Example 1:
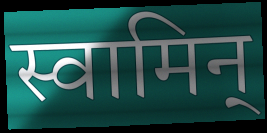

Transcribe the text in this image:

स्वामिन्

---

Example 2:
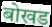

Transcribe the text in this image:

बोखड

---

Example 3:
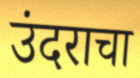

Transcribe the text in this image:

उंदराचा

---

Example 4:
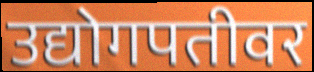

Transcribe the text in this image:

उद्योगपतीवर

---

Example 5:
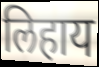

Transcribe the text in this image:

लिहाय